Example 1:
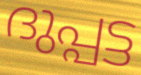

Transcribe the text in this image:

ദുപ്പട്ട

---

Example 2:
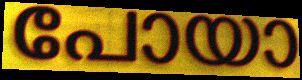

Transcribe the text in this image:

പോയാ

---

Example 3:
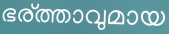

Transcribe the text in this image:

ഭര്ത്താവുമായ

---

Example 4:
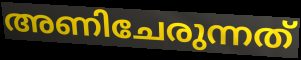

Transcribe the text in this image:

അണിചേരുന്നത്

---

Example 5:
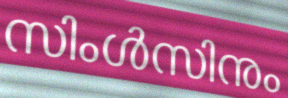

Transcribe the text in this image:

സിംൾസിനും